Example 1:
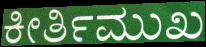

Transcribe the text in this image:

ಕೀರ್ತಿಮುಖ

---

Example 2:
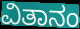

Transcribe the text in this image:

ವಿತಾನಂ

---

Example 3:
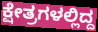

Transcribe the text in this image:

ಕ್ಷೇತ್ರಗಳಲ್ಲಿದ್ದ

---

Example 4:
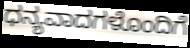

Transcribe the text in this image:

ಧನ್ಯವಾದಗಳೊಂದಿಗೆ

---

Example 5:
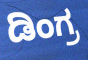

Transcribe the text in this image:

ಡಿಂಗ್ರ